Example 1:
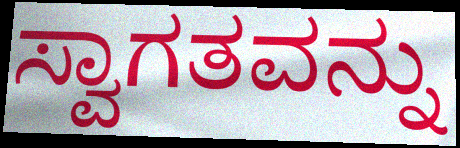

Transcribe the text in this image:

ಸ್ವಾಗತವನ್ನು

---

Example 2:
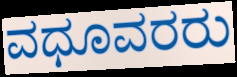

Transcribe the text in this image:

ವಧೂವರರು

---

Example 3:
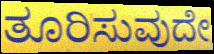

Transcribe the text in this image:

ತೂರಿಸುವುದೇ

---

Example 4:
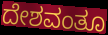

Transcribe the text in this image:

ದೇಶವಂತೂ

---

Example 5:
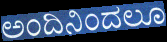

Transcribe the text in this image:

ಅಂದಿನಿಂದಲೂ